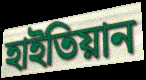
হাইতিয়ান